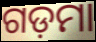
ଗଡ଼ମା